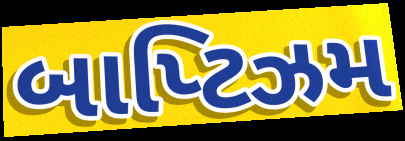
બાપ્ટિઝમ